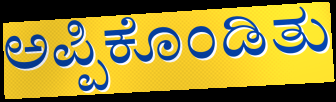
ಅಪ್ಪಿಕೊಂಡಿತು